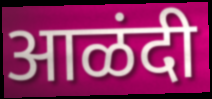
आळंदी